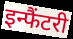
इन्फैंटरी